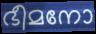
ഭീമനോ